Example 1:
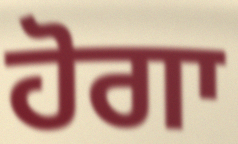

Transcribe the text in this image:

ਹੋਗਾ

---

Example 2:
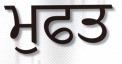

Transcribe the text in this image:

ਮੁਫਤ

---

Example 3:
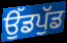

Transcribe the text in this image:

ਉੱਡਪੁੱਡ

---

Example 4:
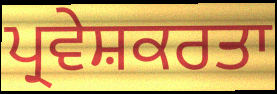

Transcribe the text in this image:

ਪ੍ਰਵੇਸ਼ਕਰਤਾ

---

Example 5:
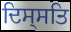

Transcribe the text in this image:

ਦਿਸ੍ਸਤਿ